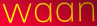
waan